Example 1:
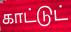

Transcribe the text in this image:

காட்டுட்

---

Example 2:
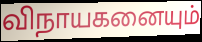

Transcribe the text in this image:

விநாயகனையும்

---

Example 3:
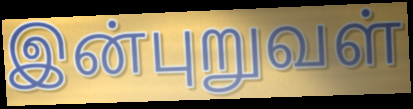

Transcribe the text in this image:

இன்புறுவள்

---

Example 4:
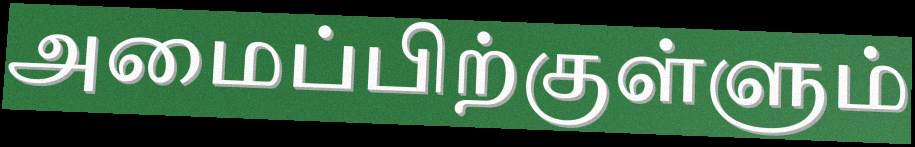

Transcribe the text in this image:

அமைப்பிற்குள்ளும்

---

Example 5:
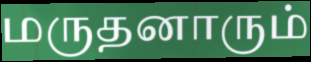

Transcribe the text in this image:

மருதனாரும்